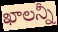
ఖాలన్నీ